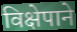
विक्षेपाने